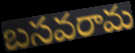
బసవరామ